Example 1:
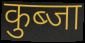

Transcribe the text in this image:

कुब्जा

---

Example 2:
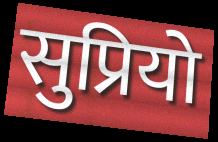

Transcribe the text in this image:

सुप्रियो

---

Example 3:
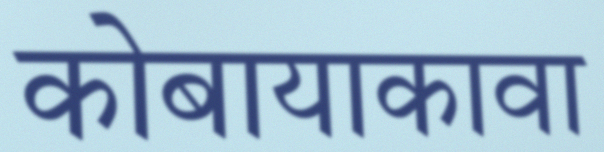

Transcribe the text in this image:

कोबायाकावा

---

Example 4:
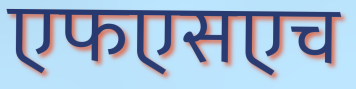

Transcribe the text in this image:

एफएसएच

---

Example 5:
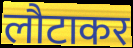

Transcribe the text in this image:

लौटाकर